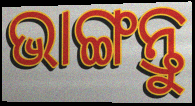
ଭାଙ୍ଗନ୍ତୁ